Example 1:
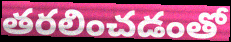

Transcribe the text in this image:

తరలించడంతో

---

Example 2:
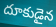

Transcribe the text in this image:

దూకుడైన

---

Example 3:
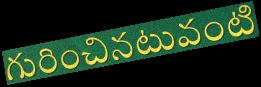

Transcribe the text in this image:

గురించినటువంటి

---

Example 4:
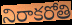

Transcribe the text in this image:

నిరాకరోతి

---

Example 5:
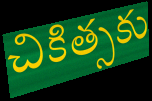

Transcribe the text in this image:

చికిత్సకు